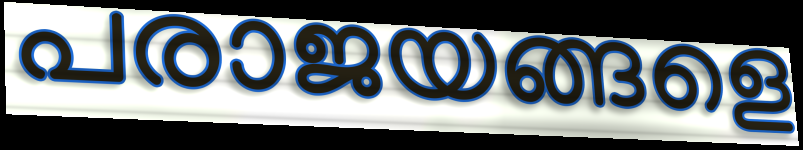
പരാജയങ്ങളെ